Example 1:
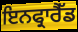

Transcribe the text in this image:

ਇਨਫ੍ਰਾਰੈੱਡ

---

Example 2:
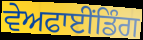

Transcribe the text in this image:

ਵੇਅਫਾਈਂਡਿੰਗ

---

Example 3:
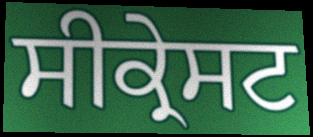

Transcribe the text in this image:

ਸੀਕ੍ਰੇਸਟ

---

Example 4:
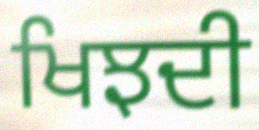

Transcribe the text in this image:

ਖਿਝਦੀ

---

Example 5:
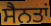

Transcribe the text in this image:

ਸੈਨਤਾਂ